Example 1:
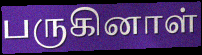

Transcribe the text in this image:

பருகினாள்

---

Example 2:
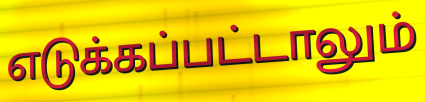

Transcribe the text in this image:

எடுக்கப்பட்டாலும்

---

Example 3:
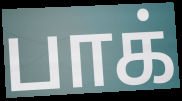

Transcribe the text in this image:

பாக்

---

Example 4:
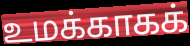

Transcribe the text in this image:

உமக்காகக்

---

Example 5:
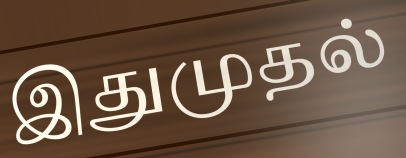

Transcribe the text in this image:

இதுமுதல்